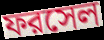
ফরসেল